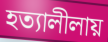
হত্যালীলায়